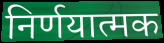
निर्णयात्मक